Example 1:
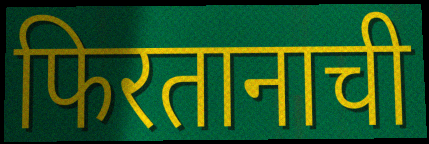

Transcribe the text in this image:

फिरतानाची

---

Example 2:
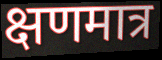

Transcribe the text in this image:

क्षणमात्र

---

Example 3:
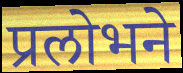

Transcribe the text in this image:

प्रलोभने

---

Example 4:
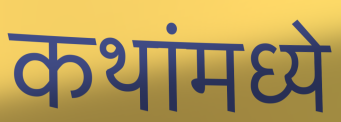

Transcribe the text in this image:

कथांमध्ये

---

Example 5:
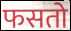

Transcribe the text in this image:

फसतो